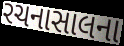
રચનાસાલના